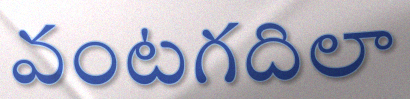
వంటగదిలా